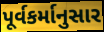
પૂર્વકર્માનુસાર